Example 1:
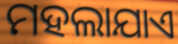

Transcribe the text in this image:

ମହଲାଯାଏ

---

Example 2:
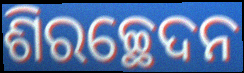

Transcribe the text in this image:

ଶିରଚ୍ଛେଦନ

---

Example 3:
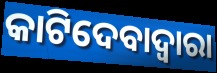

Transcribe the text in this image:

କାଟିଦେବାଦ୍ଵାରା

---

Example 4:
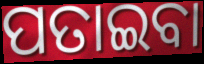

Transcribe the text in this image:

ପତାଇବା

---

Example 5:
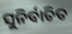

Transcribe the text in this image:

ସୁନିର୍ବାଚିତ